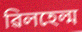
ৱিলহেল্ম